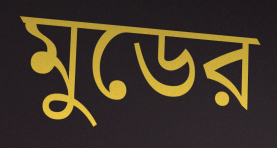
মুডের